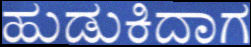
ಹುಡುಕಿದಾಗ